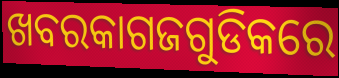
ଖବରକାଗଜଗୁଡିକରେ